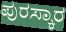
ಪುರಸ್ಕಾರ